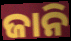
ଜାନି